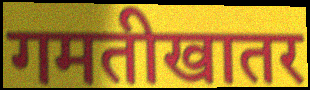
गमतीखातर